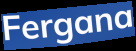
Fergana